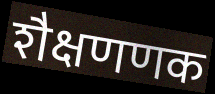
शैक्षणणक